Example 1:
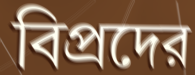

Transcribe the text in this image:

বিপ্রদের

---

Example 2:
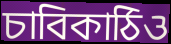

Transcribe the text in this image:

চাবিকাঠিও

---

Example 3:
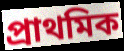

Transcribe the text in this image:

প্রাথমিক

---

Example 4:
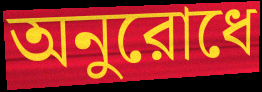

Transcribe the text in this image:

অনুরোধে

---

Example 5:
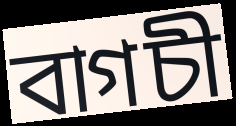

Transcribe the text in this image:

বাগচী